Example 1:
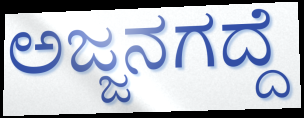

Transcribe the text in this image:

ಅಜ್ಜನಗದ್ದೆ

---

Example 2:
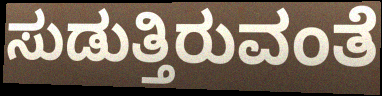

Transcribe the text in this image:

ಸುಡುತ್ತಿರುವಂತೆ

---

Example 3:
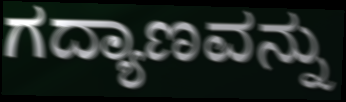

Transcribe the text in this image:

ಗದ್ಯಾಣವನ್ನು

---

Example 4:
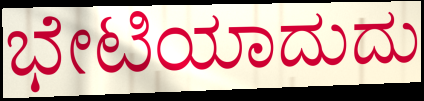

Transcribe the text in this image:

ಭೇಟಿಯಾದುದು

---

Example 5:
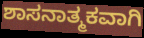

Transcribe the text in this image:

ಶಾಸನಾತ್ಮಕವಾಗಿ